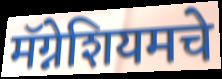
मॅग्नेशियमचे